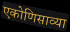
एकोणिसाव्या